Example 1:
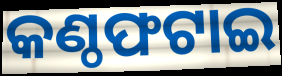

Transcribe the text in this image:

କଣ୍ଠଫଟାଇ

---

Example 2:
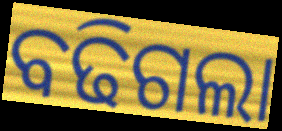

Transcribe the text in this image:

ବଢିଗଲା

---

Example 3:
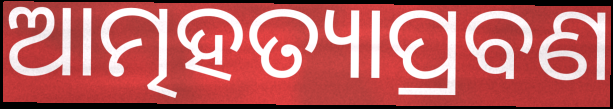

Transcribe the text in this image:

ଆତ୍ମହତ୍ୟାପ୍ରବଣ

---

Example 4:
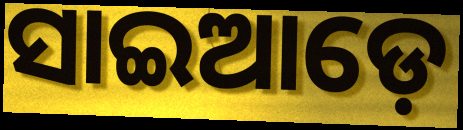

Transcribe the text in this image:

ସାଇଆଡ଼େ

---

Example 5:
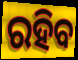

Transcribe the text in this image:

ରହିବ